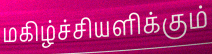
மகிழ்ச்சியளிக்கும்